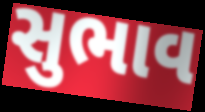
સુભાવ